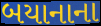
બયાનાના